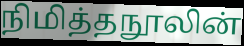
நிமித்தநூலின்